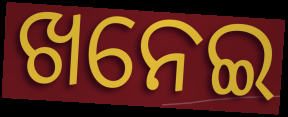
ଖନେଇ